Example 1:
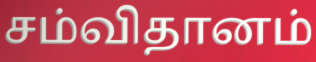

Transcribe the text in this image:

சம்விதானம்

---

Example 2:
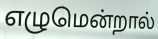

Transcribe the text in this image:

எழுமென்றால்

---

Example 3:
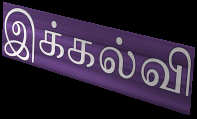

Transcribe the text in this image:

இக்கல்வி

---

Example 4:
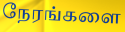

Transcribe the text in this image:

நேரங்களை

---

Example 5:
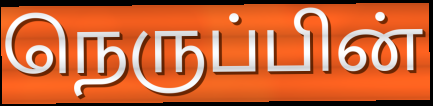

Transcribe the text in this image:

நெருப்பின்